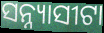
ସନ୍ନ୍ୟାସୀଟା